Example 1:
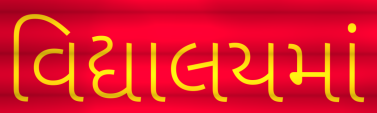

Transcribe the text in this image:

વિદ્યાલયમાં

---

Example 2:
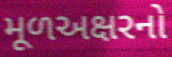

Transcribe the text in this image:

મૂળઅક્ષરનો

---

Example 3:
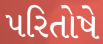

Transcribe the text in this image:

પરિતોષે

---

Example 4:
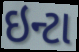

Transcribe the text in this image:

ઇન્ટા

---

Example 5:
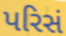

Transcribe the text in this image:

પરિસં